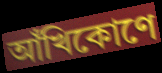
আঁখিকোণে